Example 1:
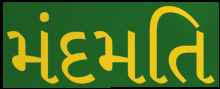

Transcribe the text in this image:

મંદમતિ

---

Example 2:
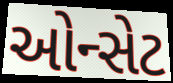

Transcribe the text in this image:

ઓન્સેટ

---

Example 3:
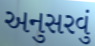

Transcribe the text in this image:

અનુસરવું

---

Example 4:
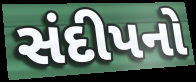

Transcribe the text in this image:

સંદીપનો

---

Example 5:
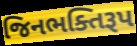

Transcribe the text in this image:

જિનભક્તિરૂપ